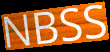
NBSS